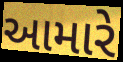
આમારે